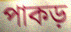
পাকড়